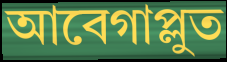
আবেগাপ্লুত